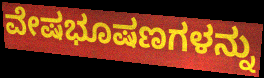
ವೇಷಭೂಷಣಗಳನ್ನು